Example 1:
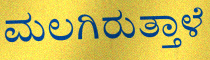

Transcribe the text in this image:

ಮಲಗಿರುತ್ತಾಳೆ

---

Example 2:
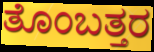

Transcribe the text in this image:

ತೊಂಬತ್ತರ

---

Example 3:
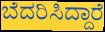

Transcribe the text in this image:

ಬೆದರಿಸಿದ್ದಾರೆ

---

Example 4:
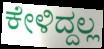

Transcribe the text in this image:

ಕೇಳಿದ್ದಲ್ಲ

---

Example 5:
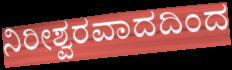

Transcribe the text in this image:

ನಿರೀಶ್ವರವಾದದಿಂದ